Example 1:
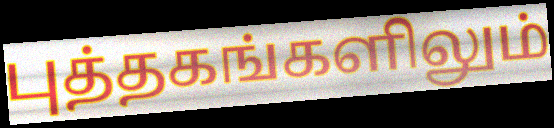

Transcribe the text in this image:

புத்தகங்களிலும்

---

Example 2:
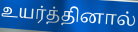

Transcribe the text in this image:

உயர்த்தினால்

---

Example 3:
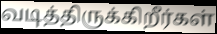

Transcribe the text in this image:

வடித்திருக்கிறீர்கள்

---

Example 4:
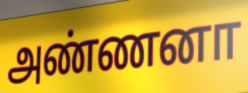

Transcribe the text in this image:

அண்ணனா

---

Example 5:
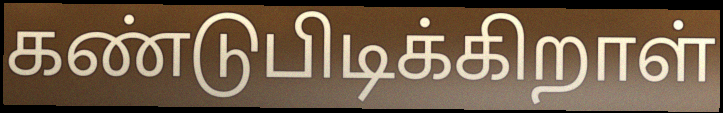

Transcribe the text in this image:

கண்டுபிடிக்கிறாள்